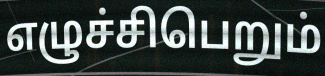
எழுச்சிபெறும்